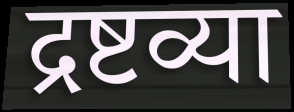
द्रष्टव्या